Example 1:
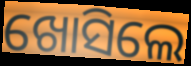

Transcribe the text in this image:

ଖୋସିଲେ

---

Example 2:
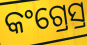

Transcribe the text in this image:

କଂଗ୍ରେସ୍ର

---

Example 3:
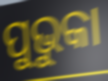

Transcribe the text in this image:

ପୁଭୁକା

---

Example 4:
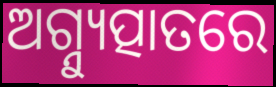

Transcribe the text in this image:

ଅଗ୍ନ୍ୟୁତ୍ପାତରେ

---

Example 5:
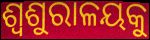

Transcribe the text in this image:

ଶ୍ୱଶୁରାଳୟକୁ